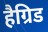
हैग्रिड